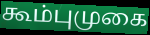
கூம்புமுகை